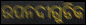
ଉପନଦୀଗୁଡିକ